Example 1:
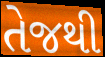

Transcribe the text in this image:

તેજથી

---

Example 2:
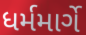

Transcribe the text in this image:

ધર્મમાર્ગે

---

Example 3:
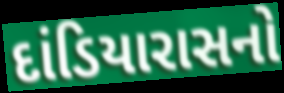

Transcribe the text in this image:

દાંડિયારાસનો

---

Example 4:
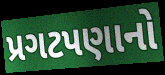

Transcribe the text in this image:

પ્રગટપણાનો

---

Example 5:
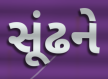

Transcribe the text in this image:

સૂંઢને